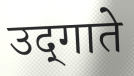
उद्‌गाते